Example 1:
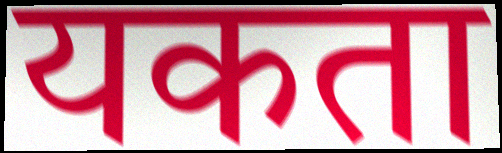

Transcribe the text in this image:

यकता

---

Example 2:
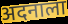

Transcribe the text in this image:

अदनाला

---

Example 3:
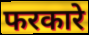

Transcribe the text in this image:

फरकारे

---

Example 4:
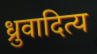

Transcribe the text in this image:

ध्रुवादित्य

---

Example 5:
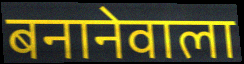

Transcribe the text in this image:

बनानेवाला